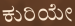
ಕುರಿಯೇ